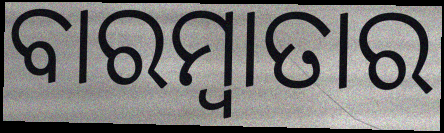
ବାରମ୍ବାତାର